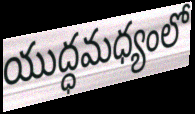
యుద్ధమధ్యంలో